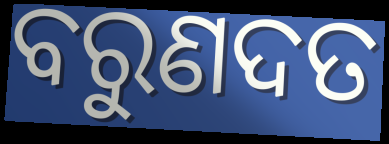
ବରୁଣଦତ